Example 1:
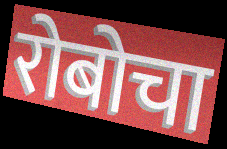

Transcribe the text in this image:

रोबोचा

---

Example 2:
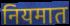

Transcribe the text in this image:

नियमात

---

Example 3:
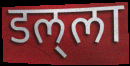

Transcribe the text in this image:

डल्ला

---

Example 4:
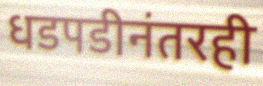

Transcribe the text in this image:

धडपडीनंतरही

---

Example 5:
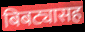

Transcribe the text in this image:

बिबट्यासह